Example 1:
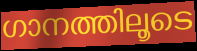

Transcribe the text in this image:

ഗാനത്തിലൂടെ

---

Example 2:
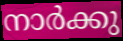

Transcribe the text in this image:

നാർക്കു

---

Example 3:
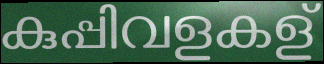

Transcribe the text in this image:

കുപ്പിവളകള്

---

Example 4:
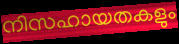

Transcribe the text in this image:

നിസഹായതകളും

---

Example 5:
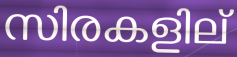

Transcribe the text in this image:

സിരകളില്